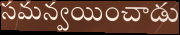
సమన్వయించాడు